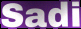
Sadi